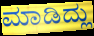
ಮಾಡಿದ್ಲು